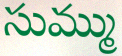
సుమ్ము